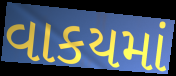
વાકયમાં